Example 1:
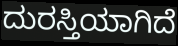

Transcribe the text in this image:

ದುರಸ್ತಿಯಾಗಿದೆ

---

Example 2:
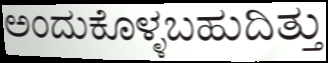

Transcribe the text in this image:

ಅಂದುಕೊಳ್ಳಬಹುದಿತ್ತು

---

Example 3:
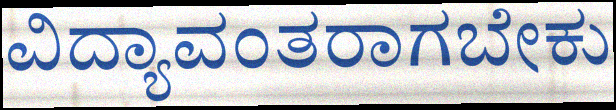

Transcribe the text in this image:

ವಿದ್ಯಾವಂತರಾಗಬೇಕು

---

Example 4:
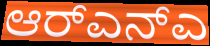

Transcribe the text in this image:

ಆರ್‌ಎನ್ಎ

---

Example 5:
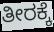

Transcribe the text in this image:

ತೀರಕ್ಕೆ